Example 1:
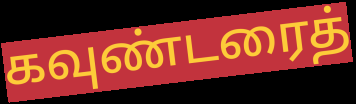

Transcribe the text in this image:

கவுண்டரைத்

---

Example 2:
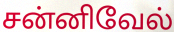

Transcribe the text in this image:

சன்னிவேல்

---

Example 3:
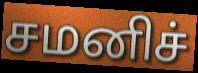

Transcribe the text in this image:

சமனிச்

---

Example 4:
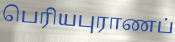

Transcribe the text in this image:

பெரியபுராணப்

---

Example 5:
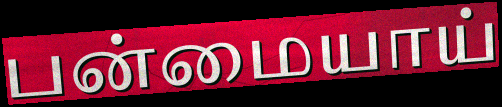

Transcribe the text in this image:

பன்மையாய்